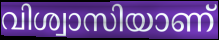
വിശ്വാസിയാണ്